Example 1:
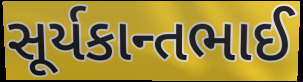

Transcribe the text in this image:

સૂર્યકાન્તભાઈ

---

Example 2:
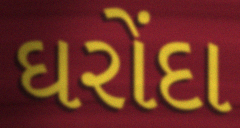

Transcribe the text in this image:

ઘરોંદા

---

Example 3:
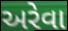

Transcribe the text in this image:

અરેવા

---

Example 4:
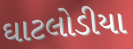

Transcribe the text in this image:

ઘાટલોડીયા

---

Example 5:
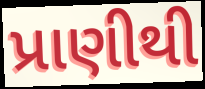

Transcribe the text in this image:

પ્રાણીથી